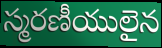
స్మరణీయులైన